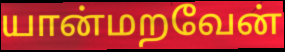
யான்மறவேன்